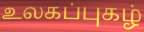
உலகப்புகழ்